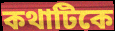
কথাটিকে